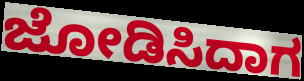
ಜೋಡಿಸಿದಾಗ